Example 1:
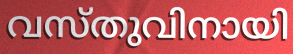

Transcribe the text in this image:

വസ്തുവിനായി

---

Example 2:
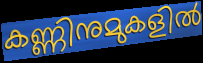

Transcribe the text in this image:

കണ്ണിനുമുകളിൽ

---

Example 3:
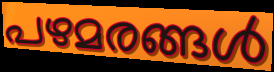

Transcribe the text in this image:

പഴമരങ്ങൾ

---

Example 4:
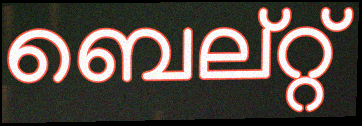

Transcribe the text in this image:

ബെല്റ്റ്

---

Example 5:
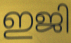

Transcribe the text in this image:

ഇജി